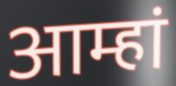
आम्हां